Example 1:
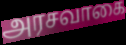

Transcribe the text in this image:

அரசவாகை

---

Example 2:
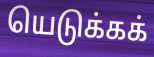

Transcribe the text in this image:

யெடுக்கக்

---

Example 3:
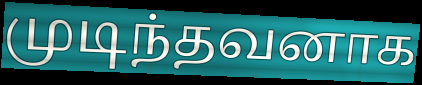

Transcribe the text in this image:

முடிந்தவனாக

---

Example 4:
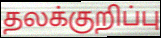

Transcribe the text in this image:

தலக்குறிப்பு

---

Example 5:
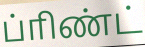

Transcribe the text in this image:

ப்ரிண்ட்